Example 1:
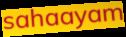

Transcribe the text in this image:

sahaayam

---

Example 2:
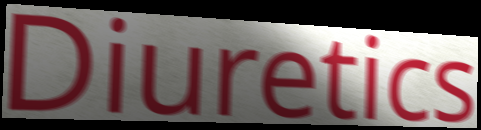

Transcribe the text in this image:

Diuretics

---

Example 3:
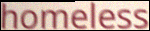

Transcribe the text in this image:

homeless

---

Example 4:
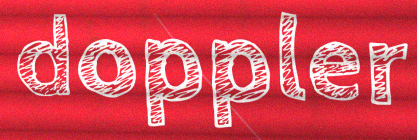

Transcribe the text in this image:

doppler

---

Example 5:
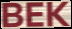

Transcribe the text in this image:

BEK